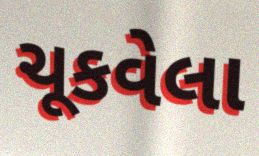
ચૂકવેલા